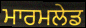
ਮਾਰਮਲੇਡ